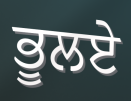
ਭੂਲਏ